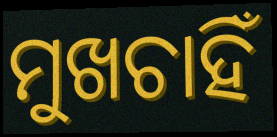
ମୁଖଚାହିଁ